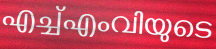
എച്ച്എംവിയുടെ